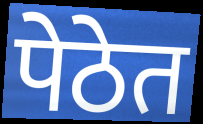
पेठेत